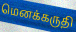
மெனக்கருதி